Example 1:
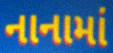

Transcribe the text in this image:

નાનામાં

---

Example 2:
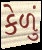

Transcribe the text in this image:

કેળું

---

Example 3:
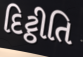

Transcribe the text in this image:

દિટ્ઠીતિ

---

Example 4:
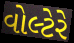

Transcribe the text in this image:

વોલ્ટેરે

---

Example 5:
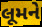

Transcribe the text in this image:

લૂમને